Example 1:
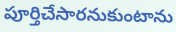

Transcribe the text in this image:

పూర్తిచేసారనుకుంటాను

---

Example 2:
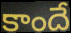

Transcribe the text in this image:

కాందే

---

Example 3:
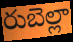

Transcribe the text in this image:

రుబెల్లా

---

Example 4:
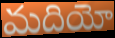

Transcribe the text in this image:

మదియో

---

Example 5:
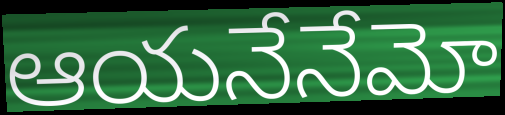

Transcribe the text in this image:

ఆయనేనేమో